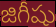
జిగీషు